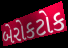
બેરોકટોક